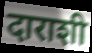
दाराशी